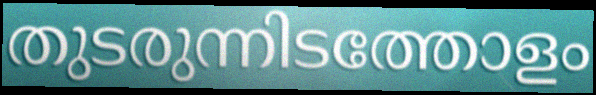
തുടരുന്നിടത്തോളം